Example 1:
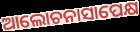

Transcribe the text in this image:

ଆଲୋଚନାସାପେକ୍ଷ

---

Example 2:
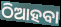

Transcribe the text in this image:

ଠିଆହବା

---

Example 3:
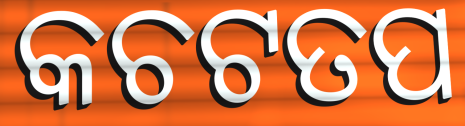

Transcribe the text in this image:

କଚଟତପ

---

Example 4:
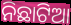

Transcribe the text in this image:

ନିଛାଟିଆ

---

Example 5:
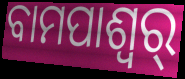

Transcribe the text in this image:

ବାମପାଶ୍ୱର୍